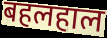
बहलहाल